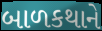
બાળકથાને